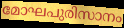
മോഘപുരിസാനം